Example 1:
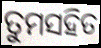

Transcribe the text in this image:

ତୁମସହିତ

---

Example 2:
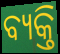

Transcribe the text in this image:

ବ୍ୟକ୍ତି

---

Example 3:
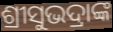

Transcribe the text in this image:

ଶ୍ରୀସୁଭଦ୍ରାଙ୍କ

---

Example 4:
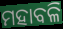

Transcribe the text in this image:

ମହାବଳି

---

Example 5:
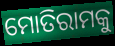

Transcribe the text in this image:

ମୋତିରାମକୁ